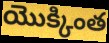
యొక్కింత